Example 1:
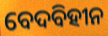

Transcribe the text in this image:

ବେଦବିହୀନ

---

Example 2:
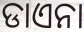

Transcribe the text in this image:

ଡାଏନା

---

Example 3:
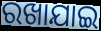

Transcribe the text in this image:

ରଖାଯାଇ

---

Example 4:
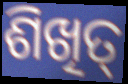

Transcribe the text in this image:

ଶିଖିତ୍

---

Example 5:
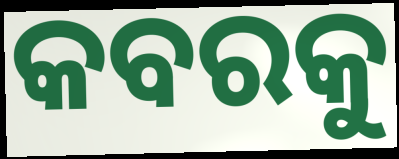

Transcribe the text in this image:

କବରକୁ